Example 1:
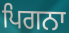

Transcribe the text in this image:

ਪਿਗਨਾ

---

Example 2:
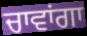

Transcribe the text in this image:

ਚਾਵਾਂਗਾ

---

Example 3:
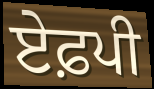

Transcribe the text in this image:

ਏਫ਼ਪੀ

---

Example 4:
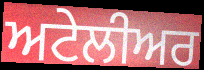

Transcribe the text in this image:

ਅਟੇਲੀਅਰ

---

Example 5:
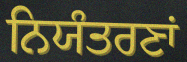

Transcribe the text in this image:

ਨਿਯੰਤਰਣਾਂ